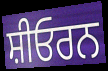
ਸ਼ੀਓਰਨ